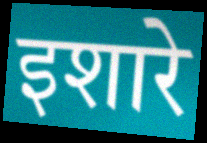
इशारे